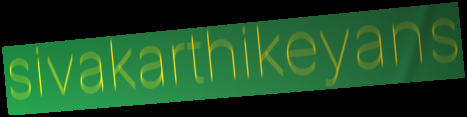
sivakarthikeyans